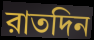
রাতদিন